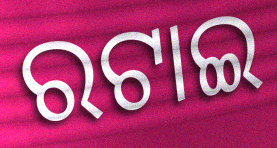
ରଟାଇ